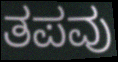
ತಪವು